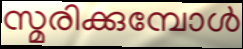
സ്മരിക്കുമ്പോൾ